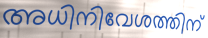
അധിനിവേശത്തിന്